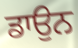
ਡਾਉਨ